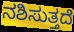
ನಶಿಸುತ್ತದೆ